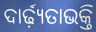
ଦାର୍ଢ଼୍ୟତାଭକ୍ତି